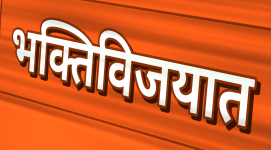
भक्तिविजयात